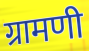
ग्रामणी